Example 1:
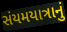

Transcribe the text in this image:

સંયમયાત્રાનું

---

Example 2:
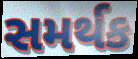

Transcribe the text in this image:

સમર્થક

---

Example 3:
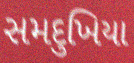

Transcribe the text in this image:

સમદુખિયા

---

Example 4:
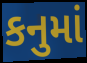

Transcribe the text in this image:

કનુમાં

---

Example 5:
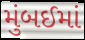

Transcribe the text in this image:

મુંબઈમાં